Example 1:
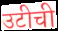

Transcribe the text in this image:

उटीची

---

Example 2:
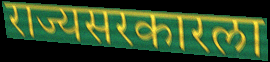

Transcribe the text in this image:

राज्यसरकारला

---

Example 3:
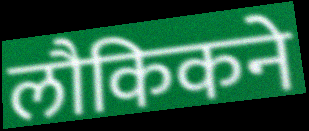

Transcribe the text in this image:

लौकिकने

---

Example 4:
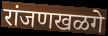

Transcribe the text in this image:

रांजणखळगे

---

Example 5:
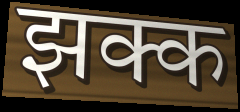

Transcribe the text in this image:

झक्क